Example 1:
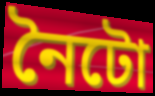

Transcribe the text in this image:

নৈটো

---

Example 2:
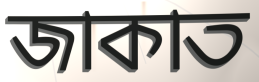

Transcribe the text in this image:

জাকাত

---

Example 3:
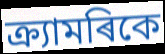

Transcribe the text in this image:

ক্ৰ্যামৰিকে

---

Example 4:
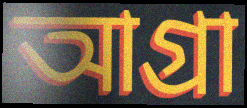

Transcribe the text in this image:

আগ্ৰা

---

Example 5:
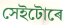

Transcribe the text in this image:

সেইটোৰে